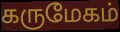
கருமேகம்